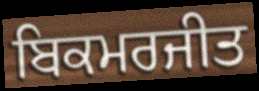
ਬਿਕਮਰਜੀਤ